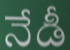
నేడీ